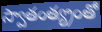
స్వాతంత్య్రంతో